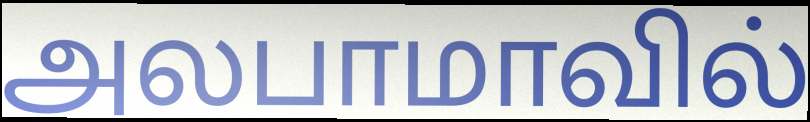
அலபாமாவில்